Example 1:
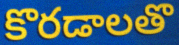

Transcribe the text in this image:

కొరడాలతొ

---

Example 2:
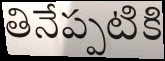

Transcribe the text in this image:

తినేప్పటికి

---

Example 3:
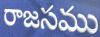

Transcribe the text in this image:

రాజసము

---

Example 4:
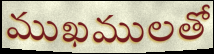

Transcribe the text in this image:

ముఖములతో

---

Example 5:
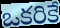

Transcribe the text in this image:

ఒకరికే